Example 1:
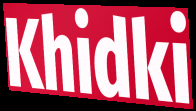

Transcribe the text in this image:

Khidki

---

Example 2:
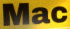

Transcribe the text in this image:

Mac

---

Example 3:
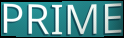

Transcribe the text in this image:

PRIME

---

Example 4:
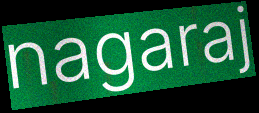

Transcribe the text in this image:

nagaraj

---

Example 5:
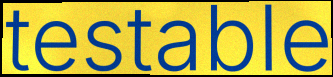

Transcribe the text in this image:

testable